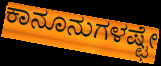
ಕಾನೂನುಗಳಷ್ಟೇ